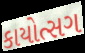
કાયોત્સગ